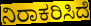
ನಿರಾಕರಿಸಿದೆ